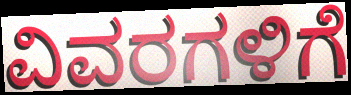
ವಿವರಗಳಿಗೆ